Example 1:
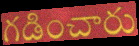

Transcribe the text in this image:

గడించారు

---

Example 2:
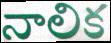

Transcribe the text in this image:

నాలిక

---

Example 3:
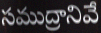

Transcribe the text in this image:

సముద్రానివే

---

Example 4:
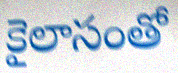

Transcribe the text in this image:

కైలాసంతో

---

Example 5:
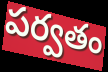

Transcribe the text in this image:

పర్వతం